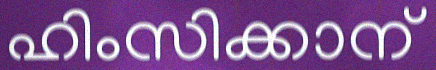
ഹിംസിക്കാന്